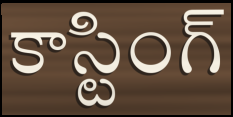
కాస్టింగ్